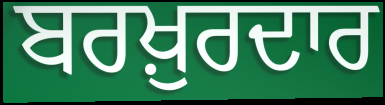
ਬਰਖ਼ੁਰਦਾਰ